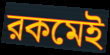
রকমেই